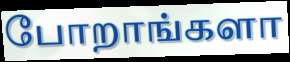
போறாங்களா